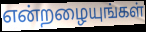
என்றழையுங்கள்